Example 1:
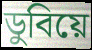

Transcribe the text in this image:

ডুবিয়ে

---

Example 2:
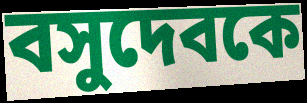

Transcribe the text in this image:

বসুদেবকে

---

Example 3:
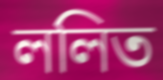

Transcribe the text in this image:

ললিত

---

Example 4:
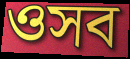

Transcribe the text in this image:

ওসব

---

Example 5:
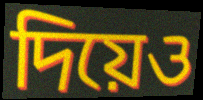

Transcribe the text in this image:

দিয়েও